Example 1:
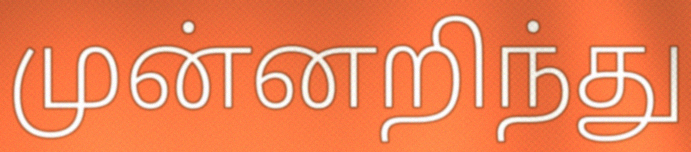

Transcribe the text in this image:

முன்னறிந்து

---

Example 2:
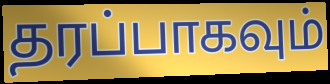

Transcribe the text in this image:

தரப்பாகவும்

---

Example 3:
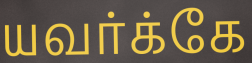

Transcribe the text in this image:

யவர்க்கே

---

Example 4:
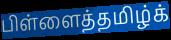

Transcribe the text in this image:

பிள்ளைத்தமிழ்க்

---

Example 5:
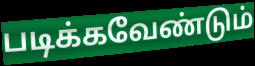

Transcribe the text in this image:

படிக்கவேண்டும்